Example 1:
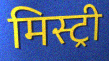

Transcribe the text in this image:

मिस्ट्री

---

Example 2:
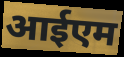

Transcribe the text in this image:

आईएम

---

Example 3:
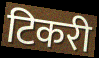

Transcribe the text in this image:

टिकरी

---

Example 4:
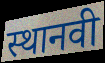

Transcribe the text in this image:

स्थानवी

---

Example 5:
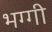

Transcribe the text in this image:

भग्गी